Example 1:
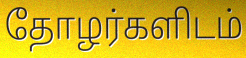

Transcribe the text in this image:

தோழர்களிடம்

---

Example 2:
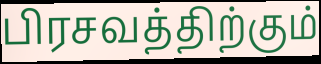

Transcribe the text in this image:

பிரசவத்திற்கும்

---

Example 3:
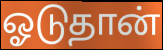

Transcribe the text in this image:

ஓடுதான்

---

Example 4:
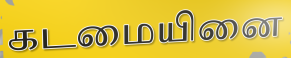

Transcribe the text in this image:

கடமையினை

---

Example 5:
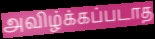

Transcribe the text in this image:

அவிழ்க்கப்படாத